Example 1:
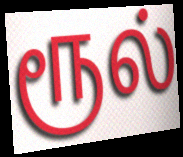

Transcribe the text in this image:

ரூல்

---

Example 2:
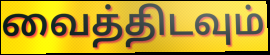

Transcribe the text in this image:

வைத்திடவும்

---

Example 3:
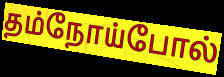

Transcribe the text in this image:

தம்நோய்போல்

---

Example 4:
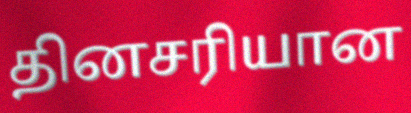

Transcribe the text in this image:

தினசரியான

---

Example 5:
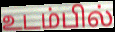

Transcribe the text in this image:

உடம்பில்